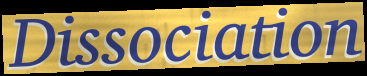
Dissociation